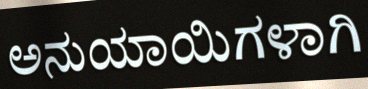
ಅನುಯಾಯಿಗಳಾಗಿ